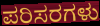
ಪರಿಸರಗಳು